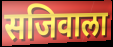
सजिवाला